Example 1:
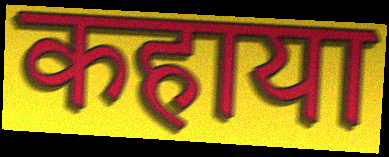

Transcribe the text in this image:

कहाया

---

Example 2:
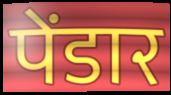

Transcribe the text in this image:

पेंडार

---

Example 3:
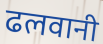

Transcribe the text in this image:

ढलवानी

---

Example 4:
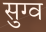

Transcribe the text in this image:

सुग्व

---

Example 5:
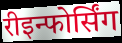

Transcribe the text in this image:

रीइन्फोर्सिंग